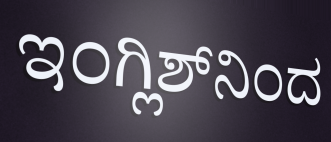
ಇಂಗ್ಲಿಶ್‌ನಿಂದ